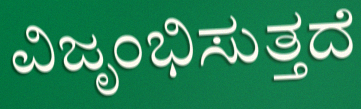
ವಿಜೃಂಭಿಸುತ್ತದೆ